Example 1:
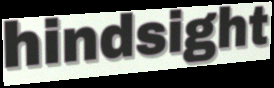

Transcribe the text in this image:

hindsight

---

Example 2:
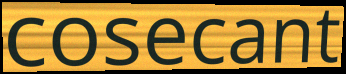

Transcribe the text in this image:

cosecant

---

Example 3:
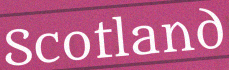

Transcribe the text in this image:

Scotland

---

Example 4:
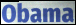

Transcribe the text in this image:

Obama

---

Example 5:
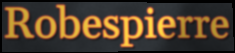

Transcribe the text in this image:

Robespierre